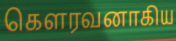
கௌரவனாகிய